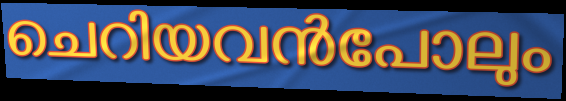
ചെറിയവൻപോലും